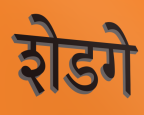
शेडगे